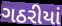
ગઠરીયાં